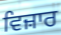
ਵਿਜ਼ਾਰ